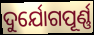
ଦୁର୍ଯୋଗପୂର୍ଣ୍ଣ